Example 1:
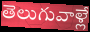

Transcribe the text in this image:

తెలుగువాళ్లే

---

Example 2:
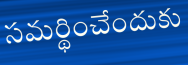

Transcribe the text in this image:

సమర్థించేందుకు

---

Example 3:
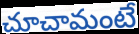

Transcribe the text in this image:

చూచామంటే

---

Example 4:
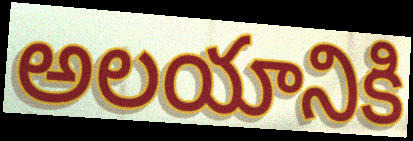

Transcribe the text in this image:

అలయానికి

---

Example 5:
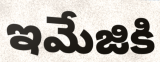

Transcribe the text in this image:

ఇమేజికి